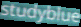
studyblue